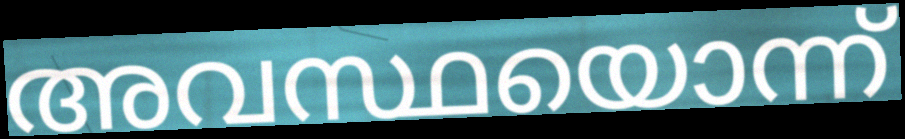
അവസ്ഥയൊന്ന്